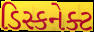
ડિસ્કનેક્ટ